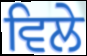
ਵਿਲੇ